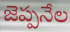
జెప్పనేల